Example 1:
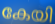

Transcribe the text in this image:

കേയി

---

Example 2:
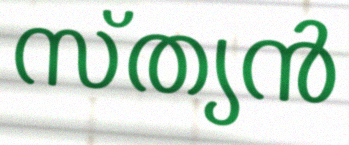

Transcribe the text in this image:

സ്‌ത്യൻ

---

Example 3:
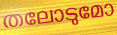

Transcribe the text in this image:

തലോടുമോ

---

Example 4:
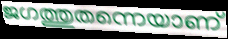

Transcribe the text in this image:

ജഗത്തുതന്നെയാണ്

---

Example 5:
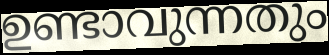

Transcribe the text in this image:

ഉണ്ടാവുന്നതും